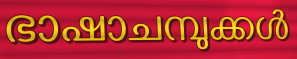
ഭാഷാചമ്പുക്കൾ